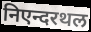
निएन्दरथल